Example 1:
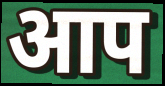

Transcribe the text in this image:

आप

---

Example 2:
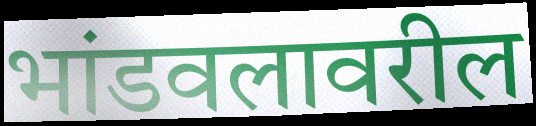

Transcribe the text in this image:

भांडवलावरील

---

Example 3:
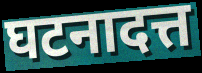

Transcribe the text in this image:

घटनादत्त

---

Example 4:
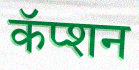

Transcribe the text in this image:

कॅप्शन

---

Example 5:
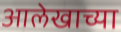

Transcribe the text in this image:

आलेखाच्या